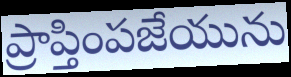
ప్రాప్తింపజేయును